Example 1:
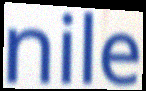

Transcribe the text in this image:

nile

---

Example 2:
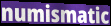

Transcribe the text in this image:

numismatic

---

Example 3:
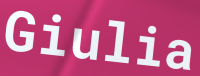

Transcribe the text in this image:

Giulia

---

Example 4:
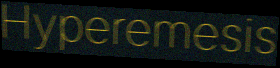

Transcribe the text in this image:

Hyperemesis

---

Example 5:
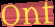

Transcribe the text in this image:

Ont